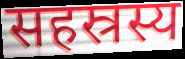
सहस्रस्य